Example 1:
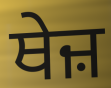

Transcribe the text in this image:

ਥੇਜ਼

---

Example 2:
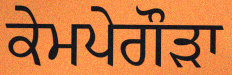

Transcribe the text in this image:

ਕੇਮਪੇਗੌੜਾ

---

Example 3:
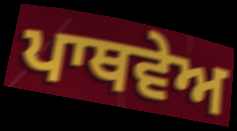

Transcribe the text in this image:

ਪਾਥਵੇਅ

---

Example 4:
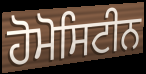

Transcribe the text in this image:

ਹੋਮੋਸਿਟੀਨ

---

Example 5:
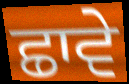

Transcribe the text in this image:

ਛਾਵੇ